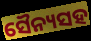
ସୈନ୍ୟସହ